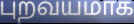
புறவயமாக